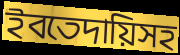
ইবতেদায়িসহ